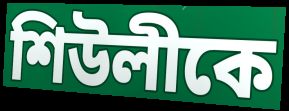
শিউলীকে